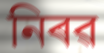
নিৰৱ